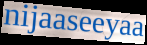
nijaaseeyaa